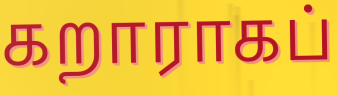
கறாராகப்